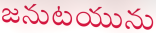
జనుటయును